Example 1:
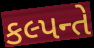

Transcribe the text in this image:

કલ્પન્તે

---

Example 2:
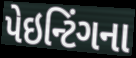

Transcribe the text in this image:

પેઇન્ટિંગના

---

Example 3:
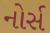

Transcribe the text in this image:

નોર્સ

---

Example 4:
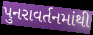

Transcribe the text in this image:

પુનરાવર્તનમાંથી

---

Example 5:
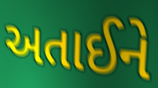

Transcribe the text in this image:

અતાઈને